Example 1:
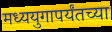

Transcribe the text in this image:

मध्ययुगापर्यंतच्या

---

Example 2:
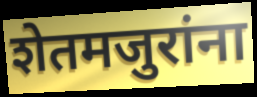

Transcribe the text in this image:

शेतमजुरांना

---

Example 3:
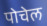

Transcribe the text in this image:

पोचेल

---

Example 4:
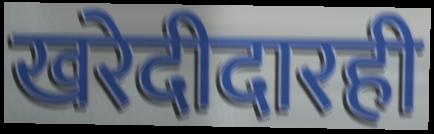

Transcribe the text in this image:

खरेदीदारही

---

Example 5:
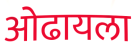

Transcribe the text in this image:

ओढायला